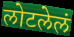
लोटलेलं